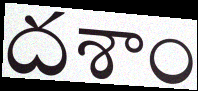
దశాం